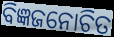
ବିଜ୍ଞଜନୋଚିତ